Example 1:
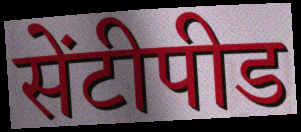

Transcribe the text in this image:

सेंटीपीड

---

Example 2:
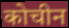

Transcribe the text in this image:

कोचीन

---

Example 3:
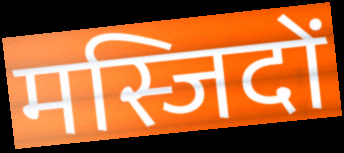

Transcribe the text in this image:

मस्‍जिदों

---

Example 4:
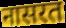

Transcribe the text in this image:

नासरत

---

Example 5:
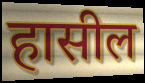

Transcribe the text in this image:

हासील